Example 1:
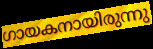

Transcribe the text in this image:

ഗായകനായിരുന്നു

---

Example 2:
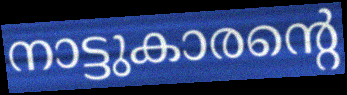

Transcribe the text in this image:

നാട്ടുകാരന്റെ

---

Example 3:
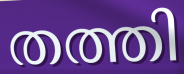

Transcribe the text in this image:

തത്തി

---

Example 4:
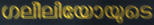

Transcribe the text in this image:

ഗലീലിയോയുടെ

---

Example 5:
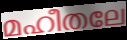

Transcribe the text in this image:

മഹീതലേ